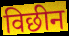
विछीन